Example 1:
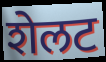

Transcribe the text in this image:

शेलट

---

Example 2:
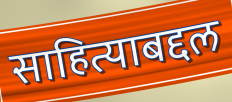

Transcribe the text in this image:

साहित्याबद्दल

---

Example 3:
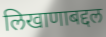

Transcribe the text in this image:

लिखाणाबद्दल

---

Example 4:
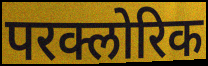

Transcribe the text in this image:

परक्लोरिक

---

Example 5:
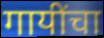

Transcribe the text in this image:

गायींचा